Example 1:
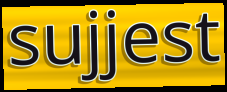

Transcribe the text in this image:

sujjest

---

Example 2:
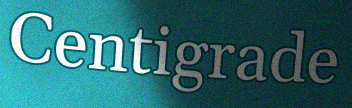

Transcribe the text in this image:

Centigrade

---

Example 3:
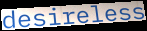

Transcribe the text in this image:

desireless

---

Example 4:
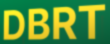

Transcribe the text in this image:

DBRT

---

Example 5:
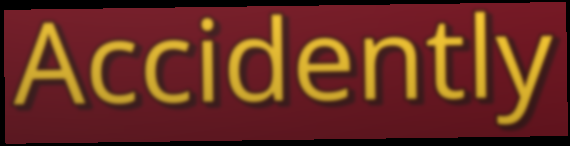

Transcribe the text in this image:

Accidently